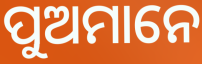
ପୁଅମାନେ